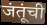
जंतूंची